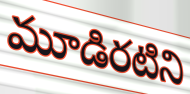
మూడిరటిని